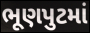
ભૂણપુટમાં